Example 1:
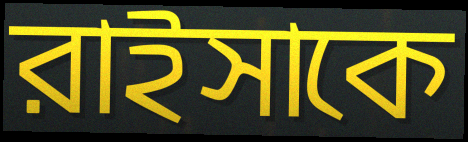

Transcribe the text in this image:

রাইসাকে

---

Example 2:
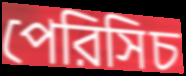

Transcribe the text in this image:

পেরিসিচ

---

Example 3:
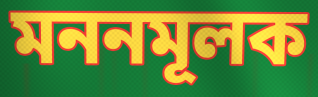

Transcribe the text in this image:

মননমূলক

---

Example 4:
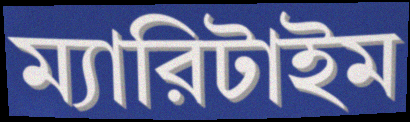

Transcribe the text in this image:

ম্যারিটাইম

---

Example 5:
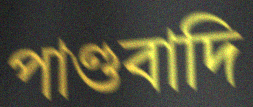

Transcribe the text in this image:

পাণ্ডবাদি